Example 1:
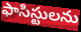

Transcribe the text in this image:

ఫాసిస్టులను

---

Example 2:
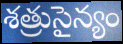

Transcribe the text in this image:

శత్రుసైన్యం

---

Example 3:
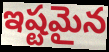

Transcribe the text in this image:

ఇష్టమైన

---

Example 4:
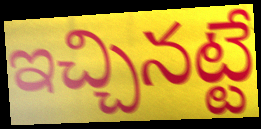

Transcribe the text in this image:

ఇచ్చినట్టే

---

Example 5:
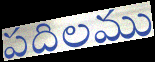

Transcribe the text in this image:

పదిలము